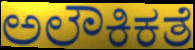
ಅಲೌಕಿಕತೆ